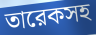
তারেকসহ